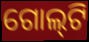
ଗୋଲ୍‍ଟି